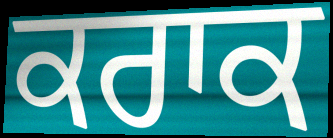
ਕਰਾਕ